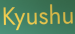
Kyushu